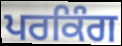
ਪਰਕਿੰਗ